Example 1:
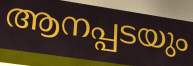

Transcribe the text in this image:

ആനപ്പടയും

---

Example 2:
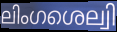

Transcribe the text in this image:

ലിംഗശെല്വി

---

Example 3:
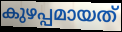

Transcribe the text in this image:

കുഴപ്പമായത്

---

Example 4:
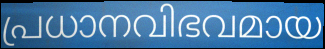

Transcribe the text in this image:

പ്രധാനവിഭവമായ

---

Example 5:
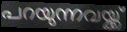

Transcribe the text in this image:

പറയുന്നവയ്ക്ക്